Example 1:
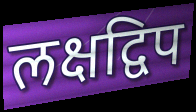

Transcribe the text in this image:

लक्षद्विप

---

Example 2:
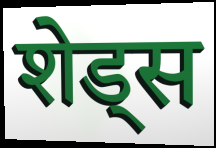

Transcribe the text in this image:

शेड्स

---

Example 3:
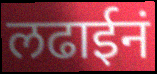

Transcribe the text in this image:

लढाईनं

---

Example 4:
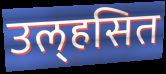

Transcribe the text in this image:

उल्हसित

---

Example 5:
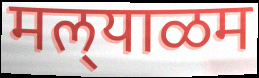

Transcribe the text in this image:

मल्याळम